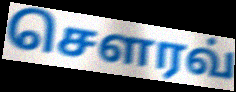
சௌரவ்